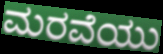
ಮರವೆಯು